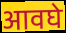
आवघे